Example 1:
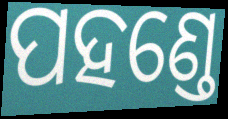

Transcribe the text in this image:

ପହଣ୍ଡେ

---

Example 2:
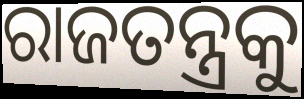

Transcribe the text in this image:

ରାଜତନ୍ତ୍ରକୁ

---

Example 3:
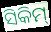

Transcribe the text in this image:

ସିକିମ୍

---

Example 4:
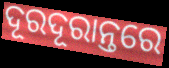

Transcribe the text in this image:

ଦୂରଦୂରାନ୍ତରେ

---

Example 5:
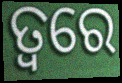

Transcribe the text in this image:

ତ୍ଵରେ